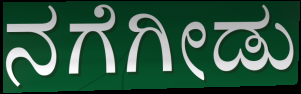
ನಗೆಗೀಡು